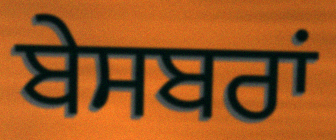
ਬੇਸਬਰਾਂ